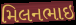
મિલનભાઇ